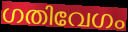
ഗതിവേഗം